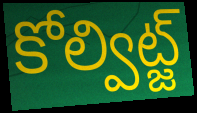
కోల్విట్జ్